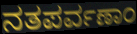
ನತಪರ್ವಣಾಂ